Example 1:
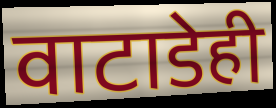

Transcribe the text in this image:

वाटाडेही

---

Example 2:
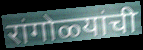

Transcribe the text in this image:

रांगोळ्यांची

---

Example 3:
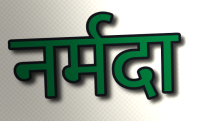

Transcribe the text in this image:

नर्मदा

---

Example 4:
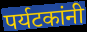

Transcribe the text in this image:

पर्यटकांनी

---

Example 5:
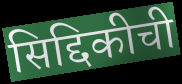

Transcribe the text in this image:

सिद्दिकीची